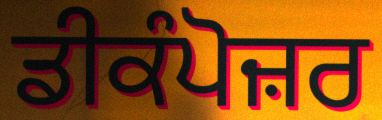
ਡੀਕੰਪੋਜ਼ਰ